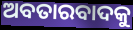
ଅବତାରବାଦକୁ